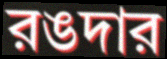
রঙদার